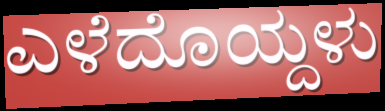
ಎಳೆದೊಯ್ದಳು